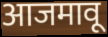
आजमावू